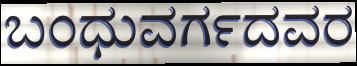
ಬಂಧುವರ್ಗದವರ